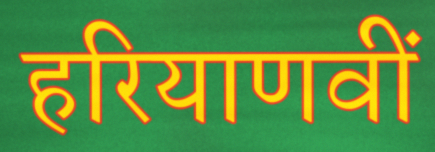
हरियाणवीं